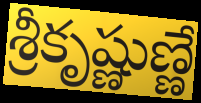
శ్రీకృష్ణుణ్ణే